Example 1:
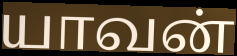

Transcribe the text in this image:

யாவன்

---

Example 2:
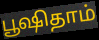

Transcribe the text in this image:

பூஷிதாம்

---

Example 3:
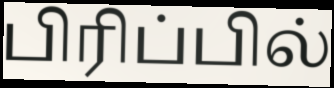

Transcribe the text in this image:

பிரிப்பில்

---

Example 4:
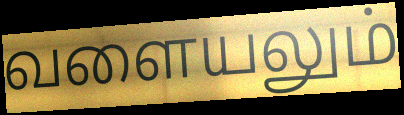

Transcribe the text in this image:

வளையலும்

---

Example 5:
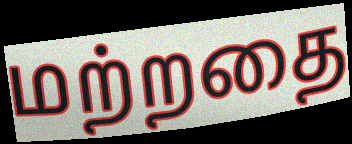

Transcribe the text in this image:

மற்றதை